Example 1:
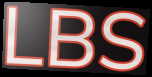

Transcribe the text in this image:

LBS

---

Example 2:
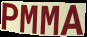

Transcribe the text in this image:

PMMA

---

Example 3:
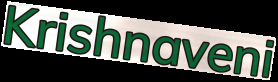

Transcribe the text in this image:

Krishnaveni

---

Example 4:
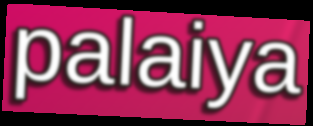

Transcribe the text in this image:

palaiya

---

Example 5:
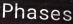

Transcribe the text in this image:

Phases